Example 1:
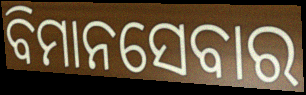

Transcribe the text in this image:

ବିମାନସେବାର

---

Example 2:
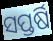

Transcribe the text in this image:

ସପ୍ତର୍ଷି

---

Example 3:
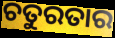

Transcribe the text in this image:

ଚତୁରତାର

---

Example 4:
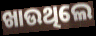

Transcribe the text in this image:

ଖାଉଥିଲେ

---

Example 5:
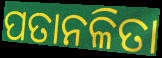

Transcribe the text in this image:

ପତାନଳିତା